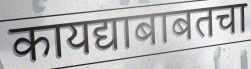
कायद्याबाबतचा